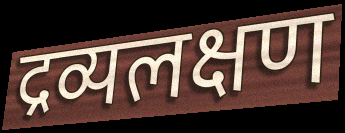
द्रव्यलक्षण